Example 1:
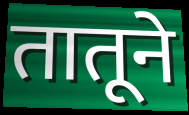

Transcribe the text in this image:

तातूने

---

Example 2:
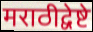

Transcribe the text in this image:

मराठीद्वेष्टे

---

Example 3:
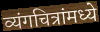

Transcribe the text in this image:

व्यंगचित्रांमध्ये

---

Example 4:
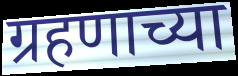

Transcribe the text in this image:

ग्रहणाच्या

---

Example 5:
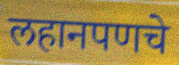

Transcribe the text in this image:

लहानपणचे